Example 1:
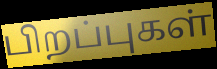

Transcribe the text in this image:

பிறப்புகள்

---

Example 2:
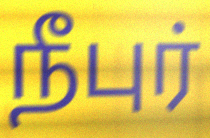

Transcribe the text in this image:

நீபுர்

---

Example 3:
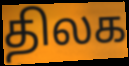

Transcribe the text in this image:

திலக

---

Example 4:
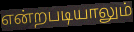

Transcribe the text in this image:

என்றபடியாலும்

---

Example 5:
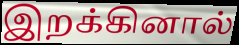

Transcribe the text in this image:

இறக்கினால்